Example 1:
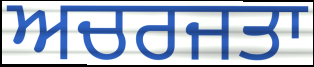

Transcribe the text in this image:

ਅਚਰਜਤਾ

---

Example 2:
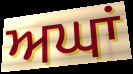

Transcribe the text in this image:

ਅਘਾਂ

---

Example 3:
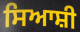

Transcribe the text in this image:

ਸਿਆਸ਼ੀ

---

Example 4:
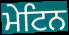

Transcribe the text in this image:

ਮੇਟਿਨ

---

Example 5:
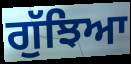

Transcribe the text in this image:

ਗੁੱਝਿਆ